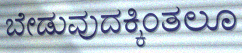
ಬೇಡುವುದಕ್ಕಿಂತಲೂ